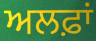
ਅਲਫ਼ਾਂ